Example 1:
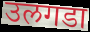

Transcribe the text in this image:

उलगडा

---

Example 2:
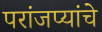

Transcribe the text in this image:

परांजप्यांचे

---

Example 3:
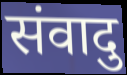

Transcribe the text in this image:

संवादु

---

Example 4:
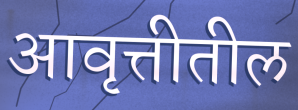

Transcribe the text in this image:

आवृत्तीतील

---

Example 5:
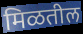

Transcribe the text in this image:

मिळतील